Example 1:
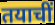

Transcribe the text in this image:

तयाचीं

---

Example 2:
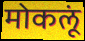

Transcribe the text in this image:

मोकलूं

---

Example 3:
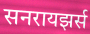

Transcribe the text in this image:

सनरायझर्स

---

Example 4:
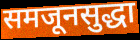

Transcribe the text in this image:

समजूनसुद्धा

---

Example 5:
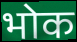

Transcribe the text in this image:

भोक